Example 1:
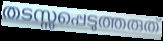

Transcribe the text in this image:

തടസ്സപ്പെടുത്തരുത്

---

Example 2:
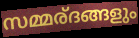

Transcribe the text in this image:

സമ്മര്ദങ്ങളും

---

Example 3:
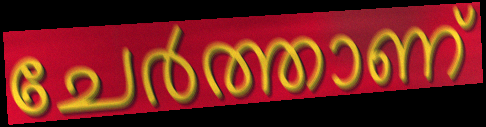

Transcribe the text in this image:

ചേർത്താണ്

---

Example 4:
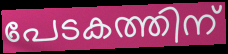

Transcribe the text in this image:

പേടകത്തിന്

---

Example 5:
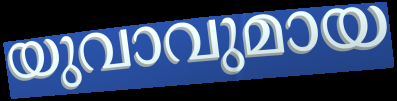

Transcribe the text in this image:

യുവാവുമായ